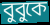
বুবুকে